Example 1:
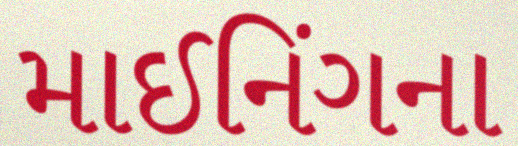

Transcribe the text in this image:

માઈનિંગના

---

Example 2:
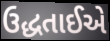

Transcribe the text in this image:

ઉદ્ધતાઈએ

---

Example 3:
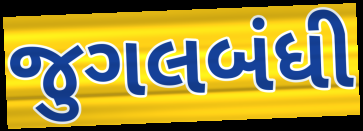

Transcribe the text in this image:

જુગલબંધી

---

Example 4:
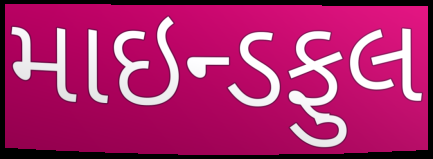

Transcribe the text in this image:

માઇન્ડફુલ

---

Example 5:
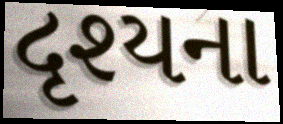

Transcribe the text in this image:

દૃશ્યના